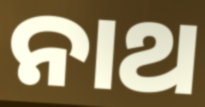
ନାଥ